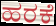
ಹರಕೆ